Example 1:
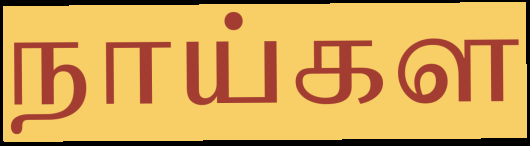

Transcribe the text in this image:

நாய்கள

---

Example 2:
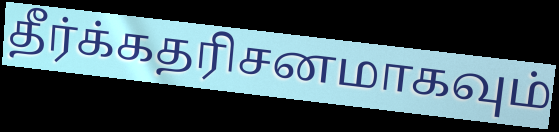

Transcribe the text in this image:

தீர்க்கதரிசனமாகவும்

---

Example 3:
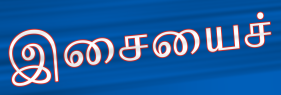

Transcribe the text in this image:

இசையைச்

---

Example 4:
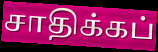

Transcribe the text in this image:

சாதிக்கப்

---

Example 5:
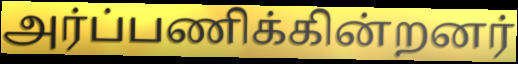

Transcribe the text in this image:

அர்ப்பணிக்கின்றனர்